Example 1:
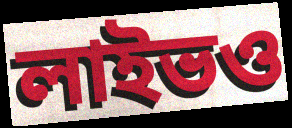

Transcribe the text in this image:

লাইভও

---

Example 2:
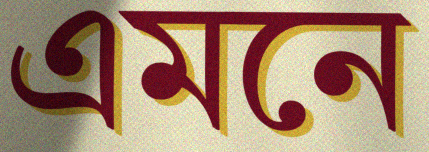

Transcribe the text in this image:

এমনে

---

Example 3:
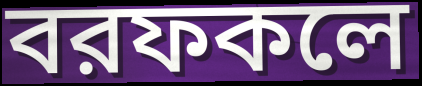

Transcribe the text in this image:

বরফকলে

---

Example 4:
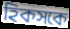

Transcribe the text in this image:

হিকসকে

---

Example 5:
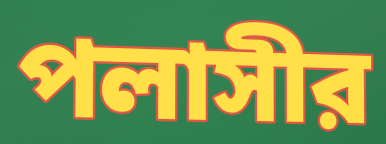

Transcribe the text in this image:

পলাসীর